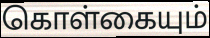
கொள்கையும்